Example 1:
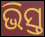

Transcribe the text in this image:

ଭିସ୍ତ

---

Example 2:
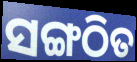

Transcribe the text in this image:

ସଙ୍ଗଠିତ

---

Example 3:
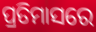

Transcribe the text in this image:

ପ୍ରତିମାସରେ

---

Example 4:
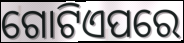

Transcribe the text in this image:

ଗୋଟିଏପରେ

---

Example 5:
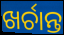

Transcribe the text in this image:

ଖର୍ଚାନ୍ତ